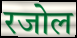
रजोल